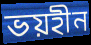
ভয়হীন